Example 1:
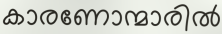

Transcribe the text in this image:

കാരണോന്മാരിൽ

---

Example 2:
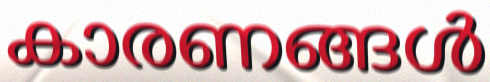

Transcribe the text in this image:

കാരണങ്ങൾ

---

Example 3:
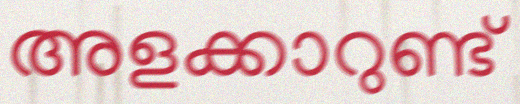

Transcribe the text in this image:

അളക്കാറുണ്ട്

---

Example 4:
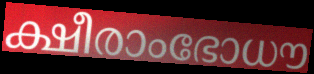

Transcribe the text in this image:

ക്ഷീരാംഭോധൗ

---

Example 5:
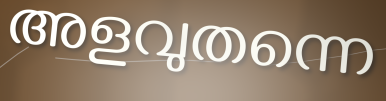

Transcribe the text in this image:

അളവുതന്നെ